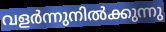
വളർന്നുനിൽക്കുന്നു